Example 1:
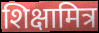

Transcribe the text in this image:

शिक्षामित्र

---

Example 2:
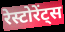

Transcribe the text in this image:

रेस्टोरेंट्स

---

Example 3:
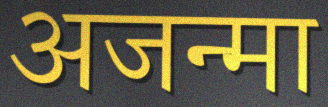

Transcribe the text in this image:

अजन्मा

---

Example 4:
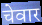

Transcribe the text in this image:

चेवार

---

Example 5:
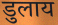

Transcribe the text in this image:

डुलाय